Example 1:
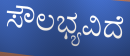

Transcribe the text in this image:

ಸೌಲಭ್ಯವಿದೆ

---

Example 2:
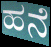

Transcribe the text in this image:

ಹನೆ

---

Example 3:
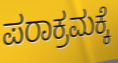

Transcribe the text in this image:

ಪರಾಕ್ರಮಕ್ಕೆ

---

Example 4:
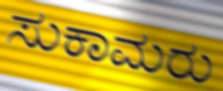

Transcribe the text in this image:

ಸುಕಾಮರು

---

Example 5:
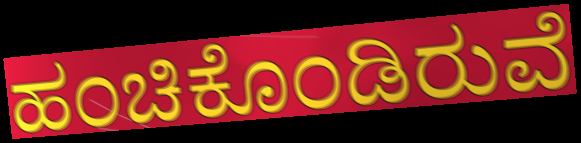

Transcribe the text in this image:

ಹಂಚಿಕೊಂಡಿರುವೆ